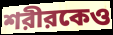
শরীরকেও